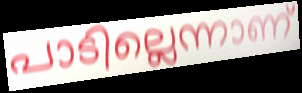
പാടില്ലെന്നാണ്